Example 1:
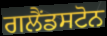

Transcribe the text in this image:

ਗਲੈਂਡਸਟੋਨ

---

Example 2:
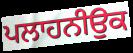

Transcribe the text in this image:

ਪਲਾਹਨੀਉਕ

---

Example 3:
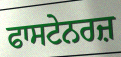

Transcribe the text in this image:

ਫਾਸਟੇਨਰਜ਼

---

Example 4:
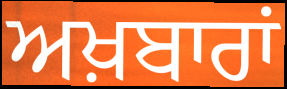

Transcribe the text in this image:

ਅਖ਼ਬਾਰਾਂ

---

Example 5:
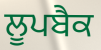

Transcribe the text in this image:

ਲੂਪਬੈਕ